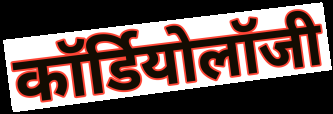
कॉर्डियोलॉजी